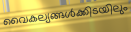
വൈകല്യങ്ങൾക്കിടയിലും